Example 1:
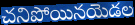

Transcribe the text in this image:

చనిపోయినయెడల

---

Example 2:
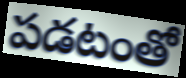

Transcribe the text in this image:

పడటంతో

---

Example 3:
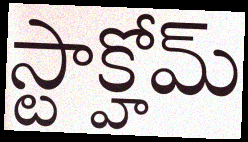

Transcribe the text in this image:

స్టాక్హోమ్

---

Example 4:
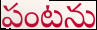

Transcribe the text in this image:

పంటను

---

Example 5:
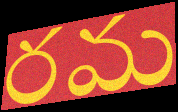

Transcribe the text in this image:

రమ